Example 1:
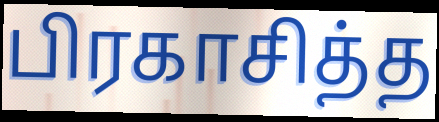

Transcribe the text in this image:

பிரகாசித்த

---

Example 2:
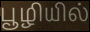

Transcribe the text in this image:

பூழியில்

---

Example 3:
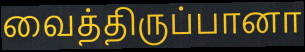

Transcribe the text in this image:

வைத்திருப்பானா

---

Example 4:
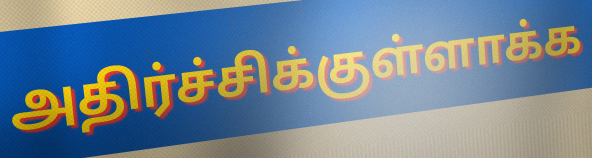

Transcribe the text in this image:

அதிர்ச்சிக்குள்ளாக்க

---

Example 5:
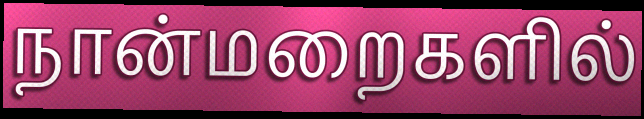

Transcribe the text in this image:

நான்மறைகளில்